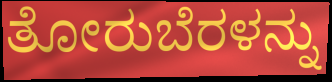
ತೋರುಬೆರಳನ್ನು